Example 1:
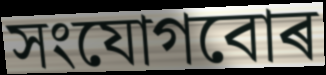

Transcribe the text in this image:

সংযোগবোৰ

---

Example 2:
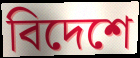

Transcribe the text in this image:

বিদেশে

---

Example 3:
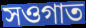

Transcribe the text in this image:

সওগাত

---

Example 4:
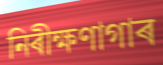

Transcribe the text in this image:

নিৰীক্ষণাগাৰ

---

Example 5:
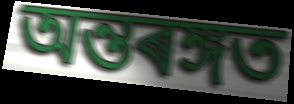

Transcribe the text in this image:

অন্তৰঙ্গত